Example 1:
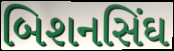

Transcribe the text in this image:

બિશનસિંઘ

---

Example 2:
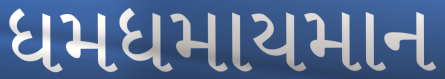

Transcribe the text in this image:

ધમધમાયમાન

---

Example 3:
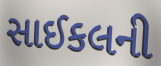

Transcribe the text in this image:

સાઈકલની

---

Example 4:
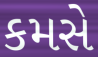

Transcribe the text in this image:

કમસે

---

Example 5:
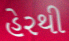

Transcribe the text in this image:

હેરથી